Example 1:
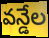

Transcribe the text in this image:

వన్డేల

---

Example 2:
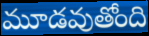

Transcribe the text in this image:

మూడవుతోంది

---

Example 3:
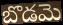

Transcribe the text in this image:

బొడమె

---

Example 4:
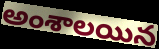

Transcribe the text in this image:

అంశాలయిన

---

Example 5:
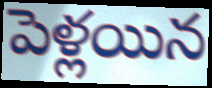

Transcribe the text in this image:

పెళ్లయిన